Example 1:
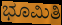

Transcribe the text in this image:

ಭೂಮಿತಿ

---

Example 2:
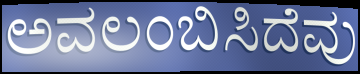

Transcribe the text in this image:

ಅವಲಂಬಿಸಿದೆವು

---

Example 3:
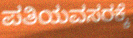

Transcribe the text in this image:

ಪತಿಯವಸರಕ್ಕೆ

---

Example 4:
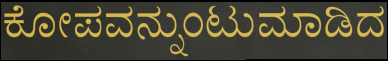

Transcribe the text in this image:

ಕೋಪವನ್ನುಂಟುಮಾಡಿದ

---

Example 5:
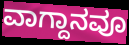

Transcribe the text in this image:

ವಾಗ್ದಾನವೂ